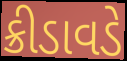
ક્રીડાવડે